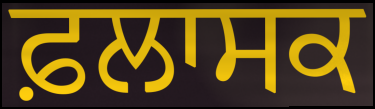
ਫ਼ਲਾਸਕ